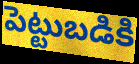
పెట్టుబడికి